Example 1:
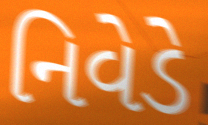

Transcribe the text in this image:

નિવેડે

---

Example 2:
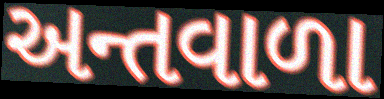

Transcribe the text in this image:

અન્તવાળા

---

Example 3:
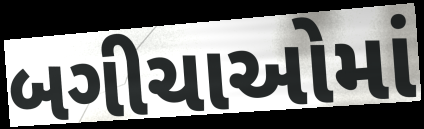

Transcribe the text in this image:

બગીચાઓમાં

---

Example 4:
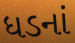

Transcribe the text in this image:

ધડનાં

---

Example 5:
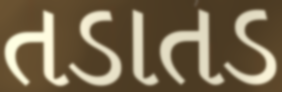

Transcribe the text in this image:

તડાતડ